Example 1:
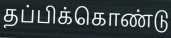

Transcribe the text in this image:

தப்பிக்கொண்டு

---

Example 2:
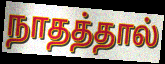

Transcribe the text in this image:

நாதத்தால்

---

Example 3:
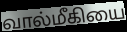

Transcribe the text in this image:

வால்மீகியை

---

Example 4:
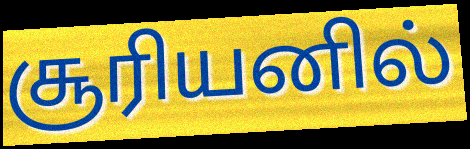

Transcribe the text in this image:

சூரியனில்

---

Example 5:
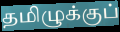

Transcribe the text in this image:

தமிழுக்குப்